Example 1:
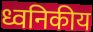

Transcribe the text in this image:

ध्वनिकीय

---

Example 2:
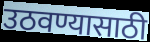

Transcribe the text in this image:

उठवण्यासाठी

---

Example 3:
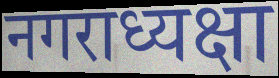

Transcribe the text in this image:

नगराध्यक्षा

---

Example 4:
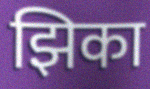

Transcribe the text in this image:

झिका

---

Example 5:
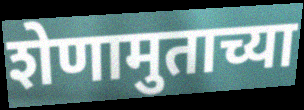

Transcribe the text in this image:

शेणामुताच्या